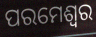
ପରମେଶ୍ୱର